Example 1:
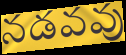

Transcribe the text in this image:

నడవవు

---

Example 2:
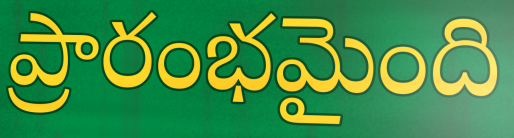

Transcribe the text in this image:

ప్రారంభమైంది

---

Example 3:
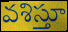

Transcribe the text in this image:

వశిస్తూ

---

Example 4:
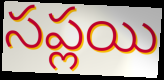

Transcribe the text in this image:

సప్లయి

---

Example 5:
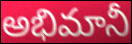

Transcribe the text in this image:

అభిమానీ